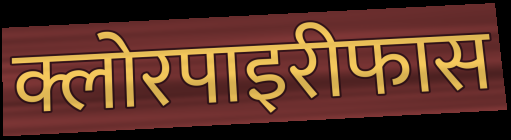
क्लोरपाइरीफास